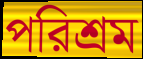
পরিশ্রম